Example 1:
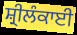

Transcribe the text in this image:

ਸ਼੍ਰੀਲੰਕਾਈ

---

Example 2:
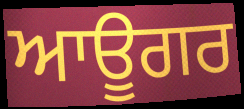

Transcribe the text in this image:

ਆਊਗਰ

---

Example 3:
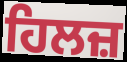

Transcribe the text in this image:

ਹਿਲਜ਼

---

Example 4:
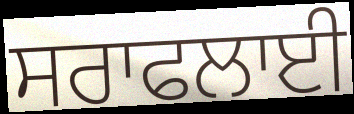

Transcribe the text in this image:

ਸਰਾਫਲਾਈ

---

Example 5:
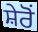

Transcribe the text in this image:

ਸ਼ੇਰੋਂ